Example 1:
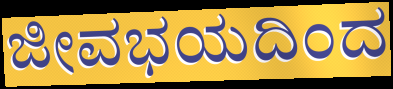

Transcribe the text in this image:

ಜೀವಭಯದಿಂದ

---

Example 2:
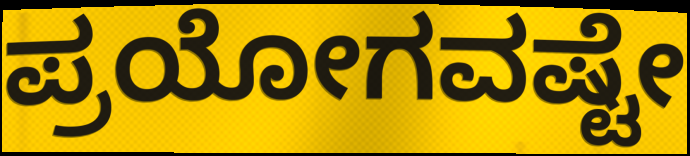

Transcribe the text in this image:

ಪ್ರಯೋಗವಷ್ಟೇ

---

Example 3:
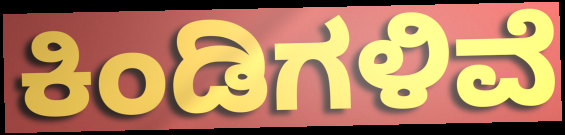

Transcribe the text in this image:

ಕಿಂಡಿಗಳಿವೆ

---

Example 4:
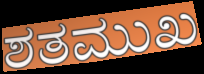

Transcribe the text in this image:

ಶತಮುಖ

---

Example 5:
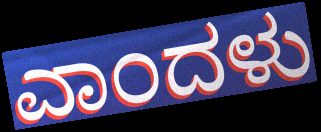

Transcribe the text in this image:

ಎಾಂದಳು